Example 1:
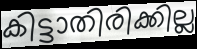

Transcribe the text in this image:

കിട്ടാതിരിക്കില്ല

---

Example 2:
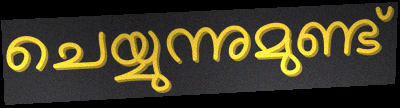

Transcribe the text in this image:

ചെയ്യുന്നുമുണ്ട്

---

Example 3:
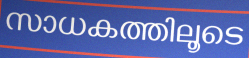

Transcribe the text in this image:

സാധകത്തിലൂടെ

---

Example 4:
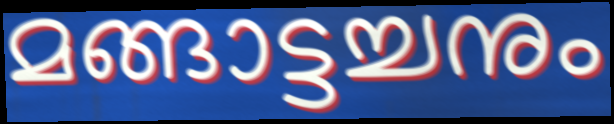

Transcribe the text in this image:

മങ്ങാട്ടച്ചനും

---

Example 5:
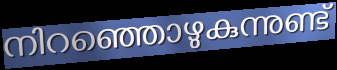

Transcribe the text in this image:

നിറഞ്ഞൊഴുകുന്നുണ്ട്